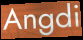
Angdi